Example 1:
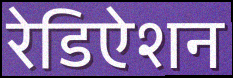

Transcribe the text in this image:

रेडिऐशन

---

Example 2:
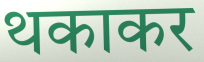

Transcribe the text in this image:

थकाकर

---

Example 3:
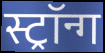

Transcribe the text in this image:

स्ट्रॉन्ग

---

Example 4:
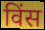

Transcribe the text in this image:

विंस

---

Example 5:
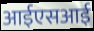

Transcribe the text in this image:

आईएसआई